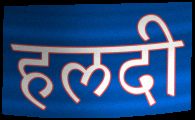
हलदी